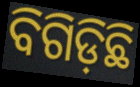
ବିଗିଡ଼ିଛି